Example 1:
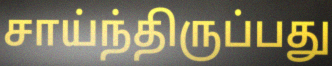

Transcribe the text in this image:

சாய்ந்திருப்பது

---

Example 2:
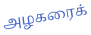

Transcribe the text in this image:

அழகரைக்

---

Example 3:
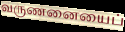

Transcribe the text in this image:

வருணனையைப்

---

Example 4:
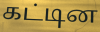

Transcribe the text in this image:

கட்டின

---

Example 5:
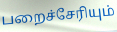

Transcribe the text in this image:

பறைச்சேரியும்